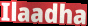
Ilaadha